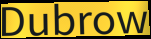
Dubrow